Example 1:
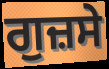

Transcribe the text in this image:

ਗੁਜ਼ਸੇ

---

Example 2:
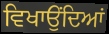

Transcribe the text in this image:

ਵਿਖਾਉਂਦਿਆਂ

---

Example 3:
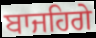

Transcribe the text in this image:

ਬਾਜਹਿਗੇ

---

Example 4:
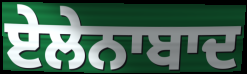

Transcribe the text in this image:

ਏਲੇਨਾਬਾਦ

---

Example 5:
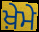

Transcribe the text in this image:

ਖ਼ੇਮੇ